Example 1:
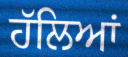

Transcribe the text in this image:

ਹੱਲਿਆਂ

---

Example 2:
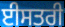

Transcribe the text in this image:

ਈਸਤਰੀ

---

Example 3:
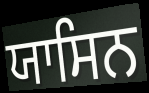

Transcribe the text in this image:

ਯਾਸਿਨ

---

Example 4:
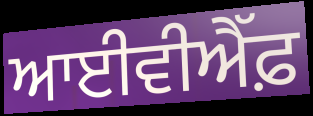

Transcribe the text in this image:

ਆਈਵੀਐੱਫ਼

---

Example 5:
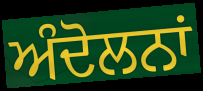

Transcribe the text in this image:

ਅੰਦੋਲਨਾਂ